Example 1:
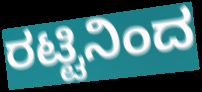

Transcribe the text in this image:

ರಟ್ಟಿನಿಂದ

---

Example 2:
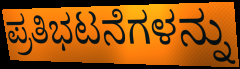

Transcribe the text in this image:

ಪ್ರತಿಭಟನೆಗಳನ್ನು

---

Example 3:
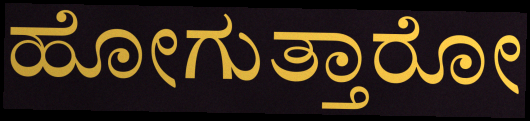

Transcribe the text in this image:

ಹೋಗುತ್ತಾರೋ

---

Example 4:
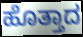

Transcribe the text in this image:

ಹೊತ್ತಾದ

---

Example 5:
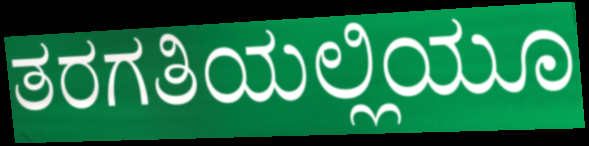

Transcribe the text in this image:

ತರಗತಿಯಲ್ಲಿಯೂ